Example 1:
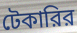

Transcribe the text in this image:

টেকারির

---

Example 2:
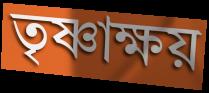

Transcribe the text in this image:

তৃষ্ণাক্ষয়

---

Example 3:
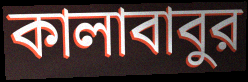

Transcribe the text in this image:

কালাবাবুর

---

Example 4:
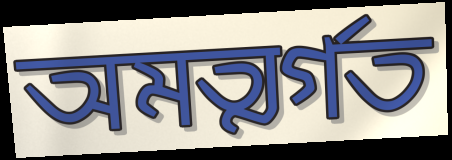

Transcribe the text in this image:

অমত্মর্গত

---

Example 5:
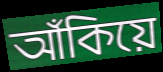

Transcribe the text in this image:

আঁকিয়ে